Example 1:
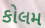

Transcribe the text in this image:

કોલમ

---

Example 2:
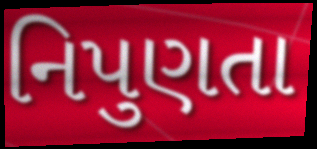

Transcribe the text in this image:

નિપુણતા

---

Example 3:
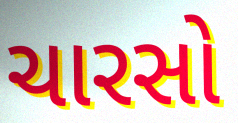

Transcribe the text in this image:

ચારસો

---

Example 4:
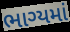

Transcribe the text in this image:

ભાગ્યમાં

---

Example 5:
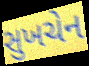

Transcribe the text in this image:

સુખચેન